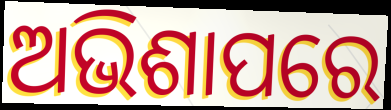
ଅଭିଶାପରେ